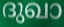
ദുഖാ